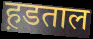
ह़डताल